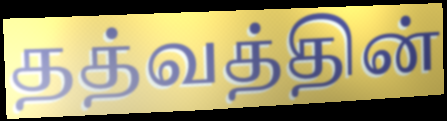
தத்வத்தின்